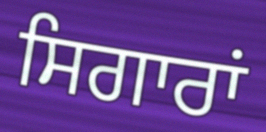
ਸਿਗਾਰਾਂ